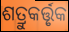
ଶତ୍ରୁକର୍ତ୍ତୃକ